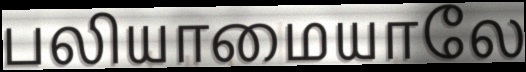
பலியாமையாலே